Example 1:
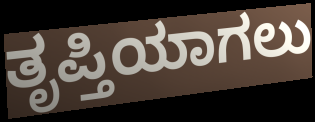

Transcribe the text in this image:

ತೃಪ್ತಿಯಾಗಲು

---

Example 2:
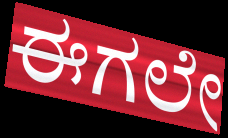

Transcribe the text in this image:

ಈಗಲೇ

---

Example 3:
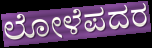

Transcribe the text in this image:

ಲೋಳೆಪದರ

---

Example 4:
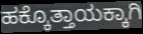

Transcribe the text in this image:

ಹಕ್ಕೊತ್ತಾಯಕ್ಕಾಗಿ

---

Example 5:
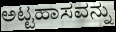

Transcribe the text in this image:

ಅಟ್ಟಹಾಸವನ್ನು